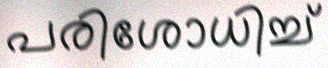
പരിശോധിച്ച്